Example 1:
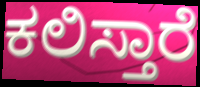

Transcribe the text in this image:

ಕಲಿಸ್ತಾರೆ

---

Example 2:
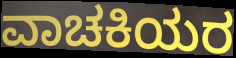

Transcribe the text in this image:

ವಾಚಕಿಯರ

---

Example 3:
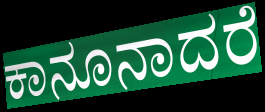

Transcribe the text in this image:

ಕಾನೂನಾದರೆ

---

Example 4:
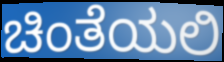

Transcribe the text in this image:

ಚಿಂತೆಯಲಿ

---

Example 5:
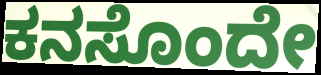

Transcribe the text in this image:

ಕನಸೊಂದೇ